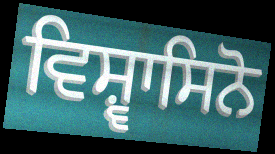
ਵਿਸ਼੍ਵਾਸਿਨੋ